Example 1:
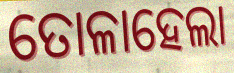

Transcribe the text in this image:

ତୋଳାହେଲା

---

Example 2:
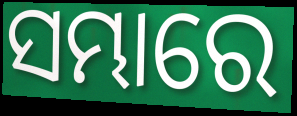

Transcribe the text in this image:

ସମ୍ଭାରେ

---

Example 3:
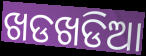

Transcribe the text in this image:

ଖଡଖଡିଆ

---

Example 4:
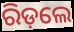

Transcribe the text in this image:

ରିଡ଼ଲେ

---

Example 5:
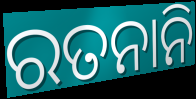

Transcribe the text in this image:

ରତନାନି